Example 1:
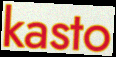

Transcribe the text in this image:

kasto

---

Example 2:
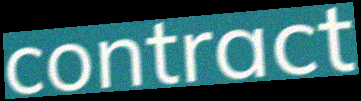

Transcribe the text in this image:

contract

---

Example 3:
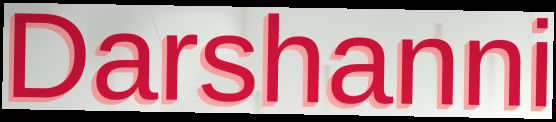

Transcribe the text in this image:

Darshanni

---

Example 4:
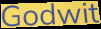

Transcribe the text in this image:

Godwit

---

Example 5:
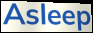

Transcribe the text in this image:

Asleep